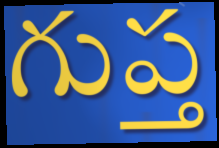
గుప్త